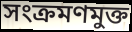
সংক্রমণমুক্ত